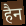
हैन